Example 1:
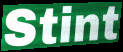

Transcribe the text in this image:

Stint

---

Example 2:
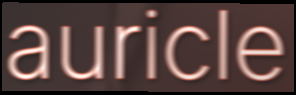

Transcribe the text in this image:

auricle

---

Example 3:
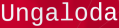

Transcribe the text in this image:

Ungaloda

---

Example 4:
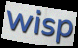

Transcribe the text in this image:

wisp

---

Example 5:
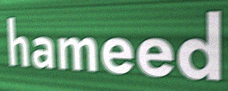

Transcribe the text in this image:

hameed